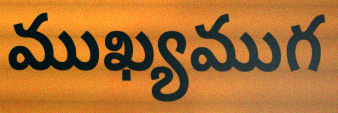
ముఖ్యముగ